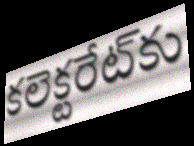
కలెక్టరేట్‌కు